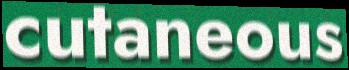
cutaneous